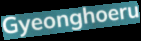
Gyeonghoeru